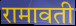
रामावती